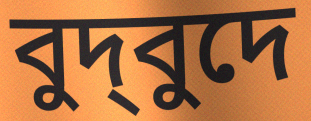
বুদ্‌বুদে